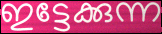
ഇട്ടേക്കുന്ന